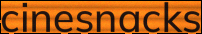
cinesnacks